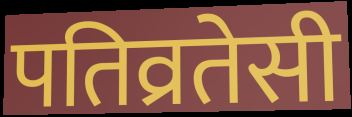
पतिव्रतेसी